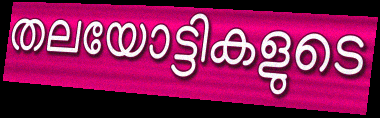
തലയോട്ടികളുടെ